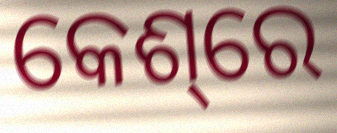
କେଶ୍‌ରେ